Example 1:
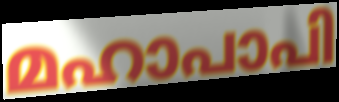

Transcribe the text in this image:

മഹാപാപി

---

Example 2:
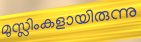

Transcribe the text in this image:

മുസ്ലിംകളായിരുന്നു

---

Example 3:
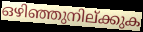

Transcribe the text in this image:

ഒഴിഞ്ഞുനില്ക്കുക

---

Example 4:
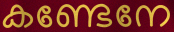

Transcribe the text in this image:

കണ്ടേനേ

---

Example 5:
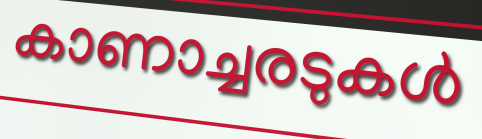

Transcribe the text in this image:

കാണാച്ചരടുകൾ